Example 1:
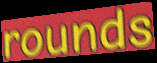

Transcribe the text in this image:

rounds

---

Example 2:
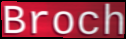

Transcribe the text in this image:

Broch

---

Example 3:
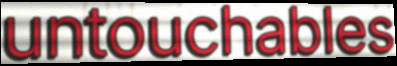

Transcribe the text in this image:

untouchables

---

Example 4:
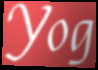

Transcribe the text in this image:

Yog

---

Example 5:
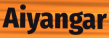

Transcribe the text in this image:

Aiyangar